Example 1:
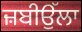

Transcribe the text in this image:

ਜ਼ਬੀਉੱਲਾ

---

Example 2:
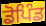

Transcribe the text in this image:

ਡੋਪਿੰਡ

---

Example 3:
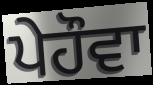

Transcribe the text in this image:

ਪੇਹੌਵਾ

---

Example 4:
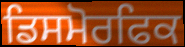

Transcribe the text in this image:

ਡਿਸਮੋਰਫਿਕ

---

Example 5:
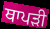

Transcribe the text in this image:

ਥਾਪੜੀ